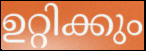
ഉറ്റിക്കും